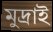
মুদ্রাই